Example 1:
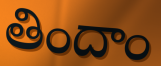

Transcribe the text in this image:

తిందాం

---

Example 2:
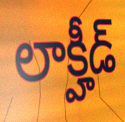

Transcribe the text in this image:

లాక్హీడ్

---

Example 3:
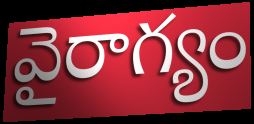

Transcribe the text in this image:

వైరాగ్యం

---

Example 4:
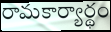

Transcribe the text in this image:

రామకార్యార్థం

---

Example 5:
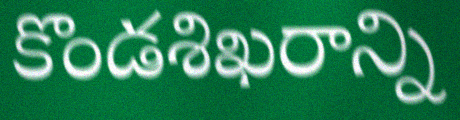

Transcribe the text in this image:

కొండశిఖరాన్ని